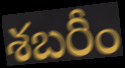
శబరీం